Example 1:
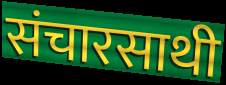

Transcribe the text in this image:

संचारसाथी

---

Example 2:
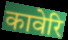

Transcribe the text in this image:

कावेरि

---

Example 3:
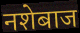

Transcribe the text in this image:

नशेबाज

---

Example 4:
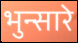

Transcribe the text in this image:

भुन्सारे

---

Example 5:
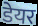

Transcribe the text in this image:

डेयर